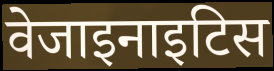
वेजाइनाइटिस